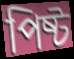
পিষ্ট